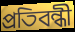
প্রতিবন্ধী